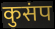
कुसंप